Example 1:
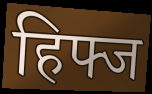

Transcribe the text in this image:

हिफ्ज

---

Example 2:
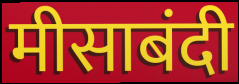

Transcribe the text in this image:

मीसाबंदी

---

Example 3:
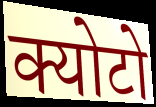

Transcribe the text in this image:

क्योटो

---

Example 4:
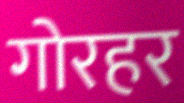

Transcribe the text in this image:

गोरहर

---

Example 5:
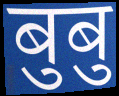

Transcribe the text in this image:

बुबु